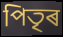
পিতৃৰ